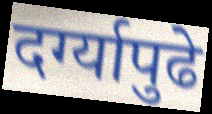
दर्ग्यापुढे